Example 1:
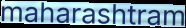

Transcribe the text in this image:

maharashtram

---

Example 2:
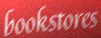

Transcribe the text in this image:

bookstores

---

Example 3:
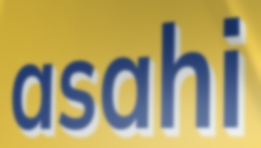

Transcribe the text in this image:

asahi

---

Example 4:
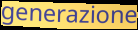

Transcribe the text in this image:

generazione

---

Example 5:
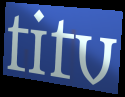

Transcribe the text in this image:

titu